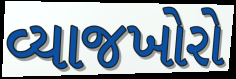
વ્યાજખોરો